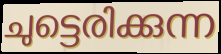
ചുട്ടെരിക്കുന്ന